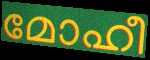
മോഹീ